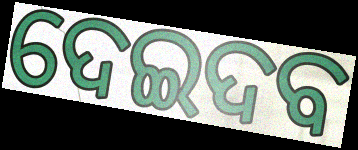
ଦେଇଦବ